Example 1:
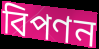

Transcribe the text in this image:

বিপণন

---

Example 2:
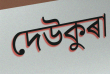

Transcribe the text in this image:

দেউকুৰা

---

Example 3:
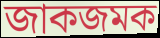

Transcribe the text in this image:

জাকজমক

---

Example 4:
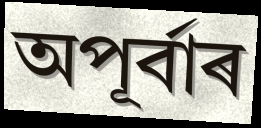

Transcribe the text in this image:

অপূৰ্বাৰ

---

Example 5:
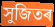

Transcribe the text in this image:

সুজিতৰ